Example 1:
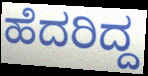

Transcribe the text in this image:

ಹೆದರಿದ್ದ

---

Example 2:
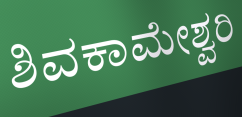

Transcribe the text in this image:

ಶಿವಕಾಮೇಶ್ವರಿ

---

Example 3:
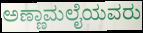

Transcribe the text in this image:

ಅಣ್ಣಾಮಲೈಯವರು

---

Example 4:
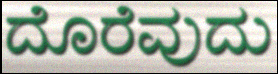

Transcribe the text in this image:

ದೊರೆವುದು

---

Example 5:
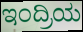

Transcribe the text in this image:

ಇಂದ್ರಿಯ